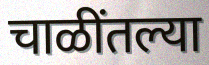
चाळींतल्या